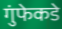
गुंफेकडे